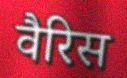
वैरिस